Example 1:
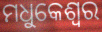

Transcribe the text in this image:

ମଧୁକେଶ୍ୱର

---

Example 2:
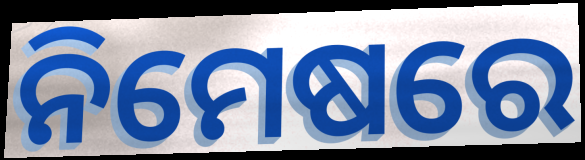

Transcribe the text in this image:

ନିମେଷରେ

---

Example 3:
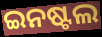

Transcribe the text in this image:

ଇନଷ୍ଟଲ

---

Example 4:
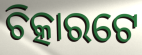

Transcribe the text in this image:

ଚିତ୍କାରଟେ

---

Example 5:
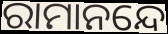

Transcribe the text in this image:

ରାମାନନ୍ଦେ